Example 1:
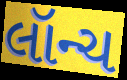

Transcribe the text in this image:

લૉન્ચ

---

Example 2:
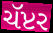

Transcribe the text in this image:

ચૅપ્ટર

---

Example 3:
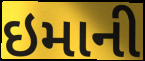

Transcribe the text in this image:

ઇમાની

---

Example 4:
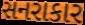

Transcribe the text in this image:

સનરાકાર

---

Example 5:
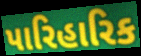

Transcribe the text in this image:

પારિહારિક